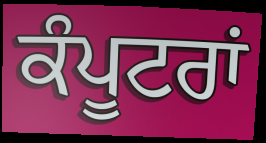
ਕੰਪੂਟਰਾਂ